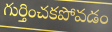
గుర్తించకపోవడం